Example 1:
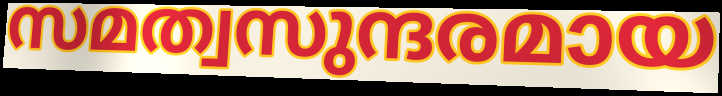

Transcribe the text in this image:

സമത്വസുന്ദരമായ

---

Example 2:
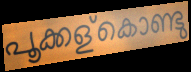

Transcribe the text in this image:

പൂക്കള്കൊണ്ടു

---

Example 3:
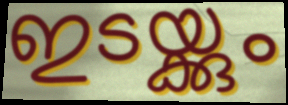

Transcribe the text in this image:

ഇടയ്ക്കും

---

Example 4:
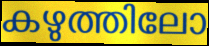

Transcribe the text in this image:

കഴുത്തിലോ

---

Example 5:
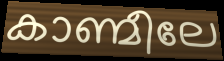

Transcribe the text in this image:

കാണ്മീലേ